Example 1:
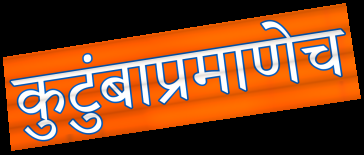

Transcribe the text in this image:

कुटुंबाप्रमाणेच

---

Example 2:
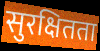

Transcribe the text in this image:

सुरक्षितता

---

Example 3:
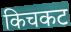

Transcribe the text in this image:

किचकट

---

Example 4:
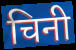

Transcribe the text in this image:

चिनी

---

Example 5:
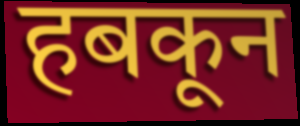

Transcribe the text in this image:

हबकून